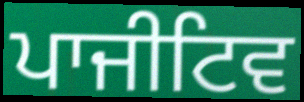
ਪਾਜੀਟਿਵ